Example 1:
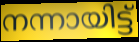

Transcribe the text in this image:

നന്നായിട്ട്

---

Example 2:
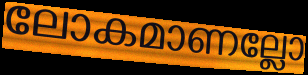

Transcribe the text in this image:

ലോകമാണല്ലോ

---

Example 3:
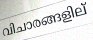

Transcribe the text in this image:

വിചാരങ്ങളില്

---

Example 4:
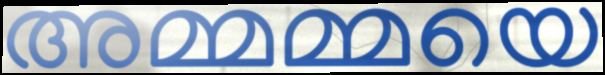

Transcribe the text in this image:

അമ്മമ്മയെ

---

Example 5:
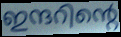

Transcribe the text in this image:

ഇന്ദറിന്റെ